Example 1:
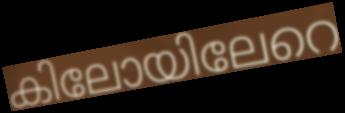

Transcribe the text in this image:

കിലോയിലേറെ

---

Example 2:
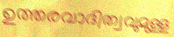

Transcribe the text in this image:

ഉത്തരവാദിത്വവുമുള്ള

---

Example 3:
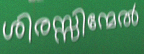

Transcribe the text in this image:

ശിരസ്സിന്മേൽ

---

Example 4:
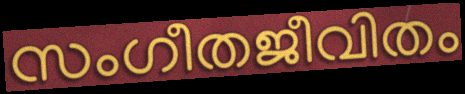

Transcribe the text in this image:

സംഗീതജീവിതം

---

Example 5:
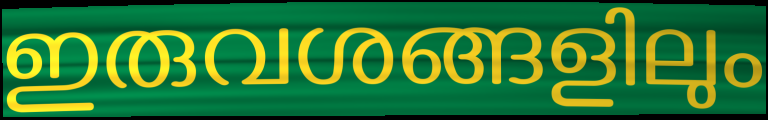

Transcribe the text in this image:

ഇരുവശങ്ങളിലും